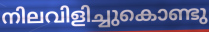
നിലവിളിച്ചുകൊണ്ടു